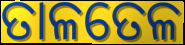
ତାଳତେଳ